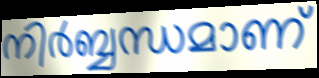
നിർബ്ബന്ധമാണ്